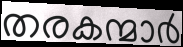
തരകന്മാർ